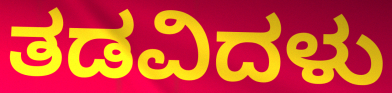
ತಡವಿದಳು